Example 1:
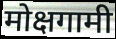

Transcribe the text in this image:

मोक्षगामी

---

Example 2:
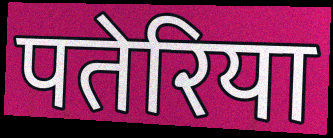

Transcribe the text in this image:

पतेरिया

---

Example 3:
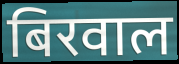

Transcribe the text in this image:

बिरवाल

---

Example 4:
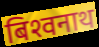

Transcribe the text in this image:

बिश्वनाथ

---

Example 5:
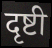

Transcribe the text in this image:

दृष्टी